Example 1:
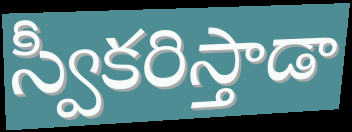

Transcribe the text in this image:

స్వీకరిస్తాడా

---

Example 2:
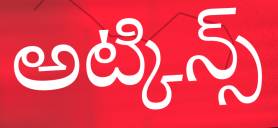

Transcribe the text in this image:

అట్కిన్స్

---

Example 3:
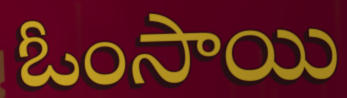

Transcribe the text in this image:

ఓంసాయి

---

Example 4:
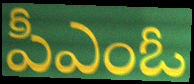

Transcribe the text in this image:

పీఎంఓ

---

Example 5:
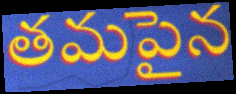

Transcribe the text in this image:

తమపైన